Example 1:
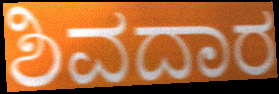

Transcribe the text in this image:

ಶಿವದಾರ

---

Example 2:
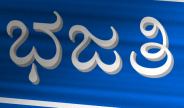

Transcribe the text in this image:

ಭಜತಿ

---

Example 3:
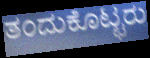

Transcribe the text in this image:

ತಂದುಕೊಟ್ಟರು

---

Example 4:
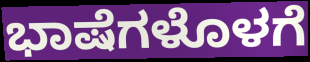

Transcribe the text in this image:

ಭಾಷೆಗಳೊಳಗೆ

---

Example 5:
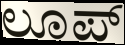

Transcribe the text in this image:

ಲೂಪ್